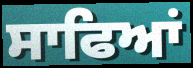
ਸਾਫਿਆਂ